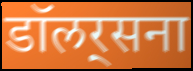
डॉलर्सना